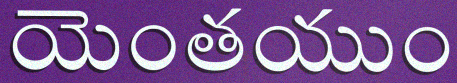
యెంతయుం